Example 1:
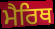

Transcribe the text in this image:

ਮੈਰਿਥ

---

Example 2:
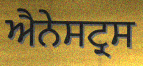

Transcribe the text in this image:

ਐਨੇਸਟ੍ਰਸ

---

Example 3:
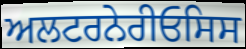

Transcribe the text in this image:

ਅਲਟਰਨੇਰੀਓਸਿਸ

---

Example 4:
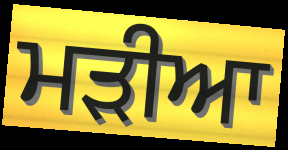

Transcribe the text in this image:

ਮਡ਼ੀਆ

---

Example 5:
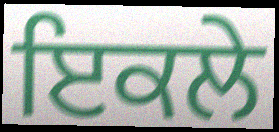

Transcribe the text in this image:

ਇਕਲੇ